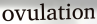
ovulation